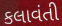
કલાવંતી